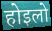
होइलो